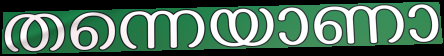
തന്നെയാണാ